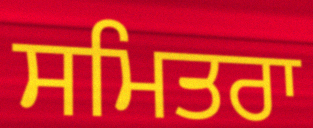
ਸਮਿਤਰਾ